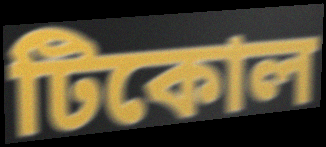
টিকোল